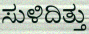
ಸುಳಿದಿತ್ತು